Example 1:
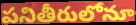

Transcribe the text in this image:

పనితీరులోనూ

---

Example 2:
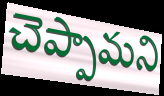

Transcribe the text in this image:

చెప్పామని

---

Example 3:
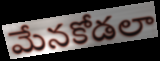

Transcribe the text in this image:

మేనకోడలా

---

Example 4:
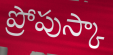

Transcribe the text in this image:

ప్రోపుస్కా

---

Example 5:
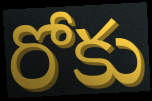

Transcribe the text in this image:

రోకు